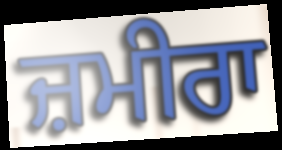
ਜ਼ਮੀਰਾ